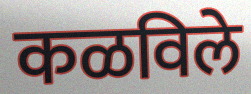
कळविले